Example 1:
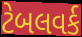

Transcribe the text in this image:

ટેબલવર્ક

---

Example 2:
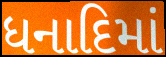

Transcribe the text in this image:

ધનાદિમાં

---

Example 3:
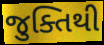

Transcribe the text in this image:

જુક્તિથી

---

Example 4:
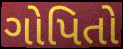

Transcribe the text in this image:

ગોપિતો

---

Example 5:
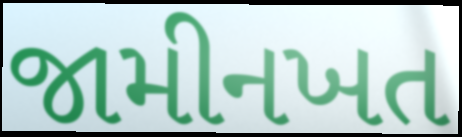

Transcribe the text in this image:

જામીનખત